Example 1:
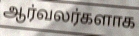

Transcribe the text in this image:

ஆர்வலர்களாக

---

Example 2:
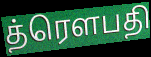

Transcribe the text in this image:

த்ரௌபதி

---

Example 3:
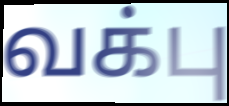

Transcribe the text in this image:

வக்பு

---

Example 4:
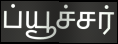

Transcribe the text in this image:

ப்யூச்சர்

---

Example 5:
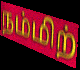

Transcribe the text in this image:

நம்மிற்